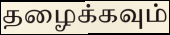
தழைக்கவும்